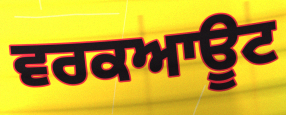
ਵਰਕਆਊਟ